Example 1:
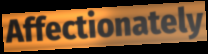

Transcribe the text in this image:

Affectionately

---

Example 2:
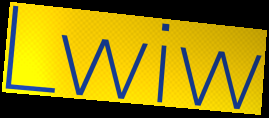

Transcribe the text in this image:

Lwiw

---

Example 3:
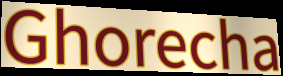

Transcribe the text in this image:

Ghorecha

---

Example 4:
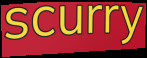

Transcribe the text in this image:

scurry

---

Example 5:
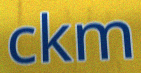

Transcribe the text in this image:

ckm